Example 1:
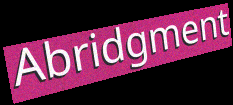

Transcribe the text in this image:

Abridgment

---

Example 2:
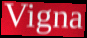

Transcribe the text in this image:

Vigna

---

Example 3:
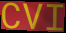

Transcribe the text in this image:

CVI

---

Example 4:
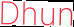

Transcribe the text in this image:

Dhun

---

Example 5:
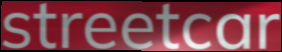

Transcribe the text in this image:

streetcar